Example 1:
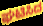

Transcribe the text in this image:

ಘಟಿಸಿದ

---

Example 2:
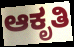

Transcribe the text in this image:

ಆಕೃತಿ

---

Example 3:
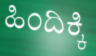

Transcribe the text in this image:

ಹಿಂದಿಕ್ಕಿ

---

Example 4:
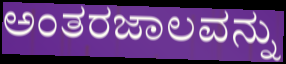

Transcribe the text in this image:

ಅಂತರಜಾಲವನ್ನು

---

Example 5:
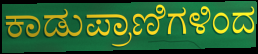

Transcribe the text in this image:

ಕಾಡುಪ್ರಾಣಿಗಳಿಂದ